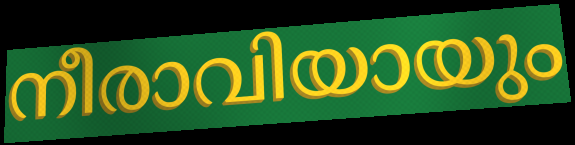
നീരാവിയായും